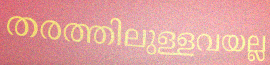
തരത്തിലുള്ളവയല്ല